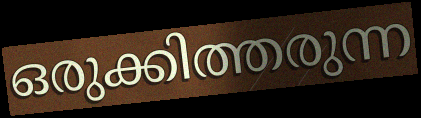
ഒരുക്കിത്തരുന്ന